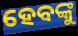
ହେବଙ୍କୁ